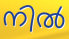
നിൽ